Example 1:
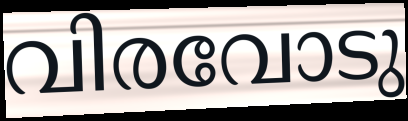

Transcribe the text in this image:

വിരവോടു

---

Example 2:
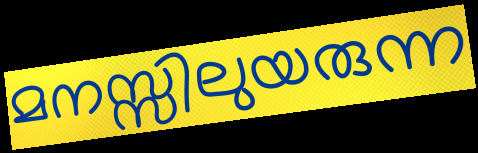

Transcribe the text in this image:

മനസ്സിലുയരുന്ന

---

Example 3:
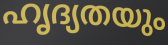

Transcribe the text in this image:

ഹൃദ്യതയും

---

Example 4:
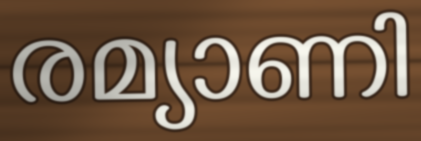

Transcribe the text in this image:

രമ്യാണി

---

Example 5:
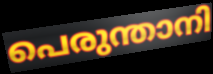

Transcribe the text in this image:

പെരുന്താനി